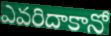
ఎవరిదాకానో